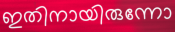
ഇതിനായിരുന്നോ